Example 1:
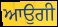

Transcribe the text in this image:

ਆਉਗੀ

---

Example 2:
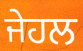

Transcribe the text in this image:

ਜੇਹਲ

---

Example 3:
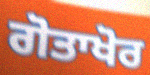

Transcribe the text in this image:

ਗੋਤਾਖੋਰ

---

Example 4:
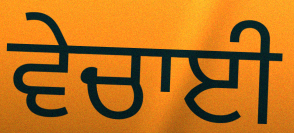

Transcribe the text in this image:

ਵੇਚਾਈ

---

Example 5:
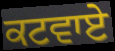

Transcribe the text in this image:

ਕਟਵਾਏ